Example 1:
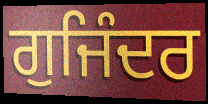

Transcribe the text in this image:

ਗੁਜਿੰਦਰ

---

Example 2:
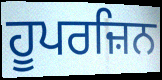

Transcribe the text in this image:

ਹੂਪਰਜ਼ਿਨ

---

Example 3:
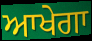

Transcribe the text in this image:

ਆਖੇਗਾ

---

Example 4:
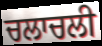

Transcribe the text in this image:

ਚਲਾਚਲੀ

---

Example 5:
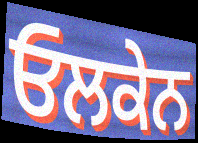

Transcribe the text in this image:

ਓਲਕੇਨ